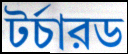
টর্চারড